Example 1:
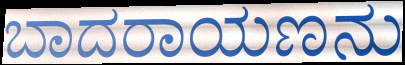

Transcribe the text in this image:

ಬಾದರಾಯಣನು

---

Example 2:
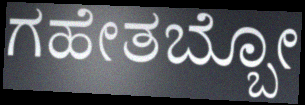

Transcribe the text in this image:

ಗಹೇತಬ್ಬೋ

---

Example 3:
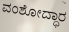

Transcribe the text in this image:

ವಂಶೋದ್ಧಾರ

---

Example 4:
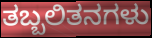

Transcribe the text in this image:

ತಬ್ಬಲಿತನಗಳು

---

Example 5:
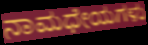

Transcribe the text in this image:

ನಾಮಧೇಯಗಳು